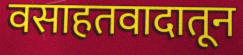
वसाहतवादातून